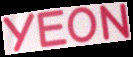
YEON